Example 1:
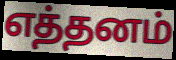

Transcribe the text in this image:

எத்தனம்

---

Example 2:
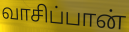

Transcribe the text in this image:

வாசிப்பான்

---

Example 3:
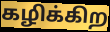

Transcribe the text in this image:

கழிக்கிற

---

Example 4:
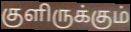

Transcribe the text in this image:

குளிருக்கும்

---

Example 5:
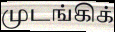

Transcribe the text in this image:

முடங்கிக்